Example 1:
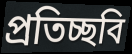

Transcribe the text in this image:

প্ৰতিচ্ছবি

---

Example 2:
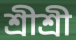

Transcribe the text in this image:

শ্ৰীশ্ৰী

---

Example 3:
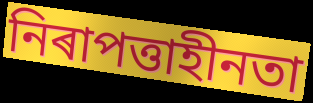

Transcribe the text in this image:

নিৰাপত্তাহীনতা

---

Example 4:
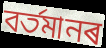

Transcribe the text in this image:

বৰ্তমানৰ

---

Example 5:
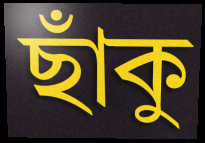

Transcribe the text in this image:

ছাঁকু